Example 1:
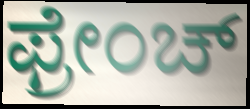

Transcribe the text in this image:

ಫ್ರೇಂಚ್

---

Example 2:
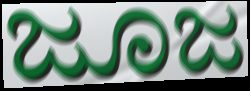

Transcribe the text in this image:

ಜೂಜ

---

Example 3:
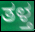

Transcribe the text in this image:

ತಳ್ತ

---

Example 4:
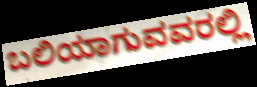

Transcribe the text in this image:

ಬಲಿಯಾಗುವವರಲ್ಲಿ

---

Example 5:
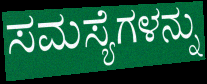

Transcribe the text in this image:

ಸಮಸ್ಯೆಗಳನ್ನು